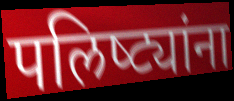
पलिष्ट्यांना